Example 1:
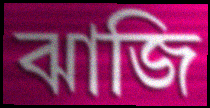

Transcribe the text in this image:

ঝাজি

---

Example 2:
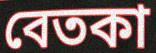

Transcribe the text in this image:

বেতকা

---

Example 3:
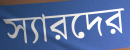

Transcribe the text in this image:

স্যারদের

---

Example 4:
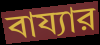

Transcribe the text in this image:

বায্যার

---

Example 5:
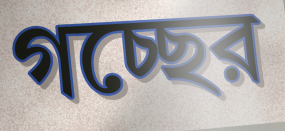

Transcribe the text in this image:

গচ্ছের